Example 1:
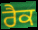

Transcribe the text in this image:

ਰੈਕ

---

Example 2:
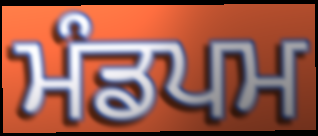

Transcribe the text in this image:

ਮੰਡਪਮ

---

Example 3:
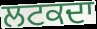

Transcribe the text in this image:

ਲਟਕਦਾ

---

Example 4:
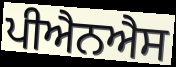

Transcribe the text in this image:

ਪੀਐਨਐਸ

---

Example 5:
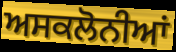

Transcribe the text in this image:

ਅਸਕਲੋਨੀਆਂ